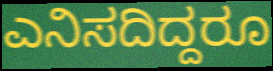
ಎನಿಸದಿದ್ದರೂ